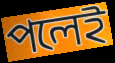
পলেই